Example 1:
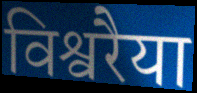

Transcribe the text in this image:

विश्वरैया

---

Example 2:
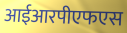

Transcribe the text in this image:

आईआरपीएफएस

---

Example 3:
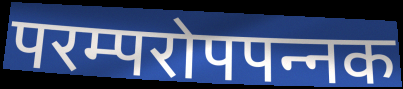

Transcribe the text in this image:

परम्परोपपन्नक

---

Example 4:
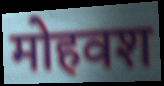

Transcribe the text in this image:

मोहवश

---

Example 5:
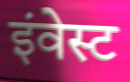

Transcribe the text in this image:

इंवेस्ट